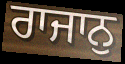
ਰਾਜਾਨੁ